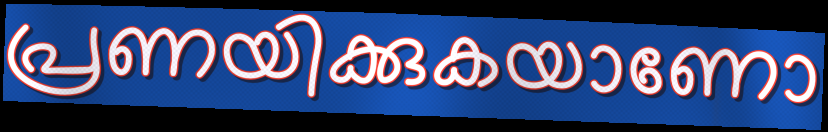
പ്രണയിക്കുകയാണോ